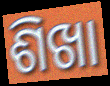
ଶିଖା